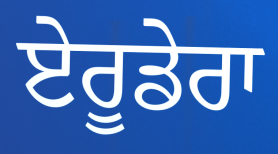
ਏਰੂਡੇਰਾ